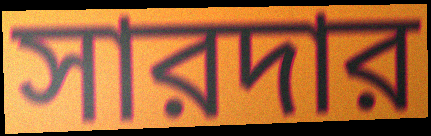
সারদার